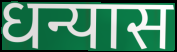
धन्यास